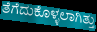
ತೆಗೆದುಕೊಳ್ಳಲಾಗಿತ್ತು